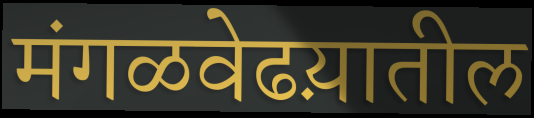
मंगळवेढय़ातील